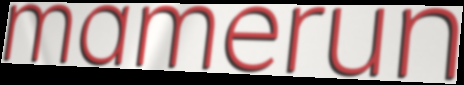
mamerun